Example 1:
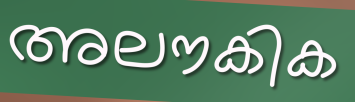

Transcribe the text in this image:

അലൗകിക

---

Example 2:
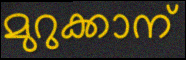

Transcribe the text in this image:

മുറുക്കാന്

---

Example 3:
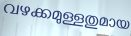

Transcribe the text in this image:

വഴക്കമുള്ളതുമായ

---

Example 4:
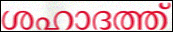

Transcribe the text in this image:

ശഹാദത്ത്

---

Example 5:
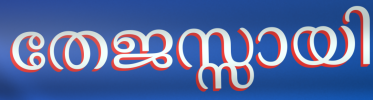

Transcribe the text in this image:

തേജസ്സായി